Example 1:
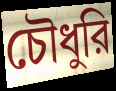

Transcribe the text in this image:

চৌধুরি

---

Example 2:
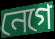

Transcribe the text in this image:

নেগে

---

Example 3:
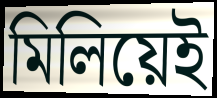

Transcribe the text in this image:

মিলিয়েই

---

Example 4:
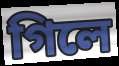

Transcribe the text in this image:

গিলে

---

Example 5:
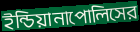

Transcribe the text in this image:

ইন্ডিয়ানাপোলিসের